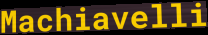
Machiavelli